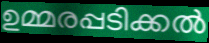
ഉമ്മരപ്പടിക്കൽ